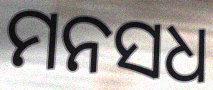
ମନସଧ